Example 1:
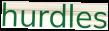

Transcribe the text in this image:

hurdles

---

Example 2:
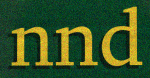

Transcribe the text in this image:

nnd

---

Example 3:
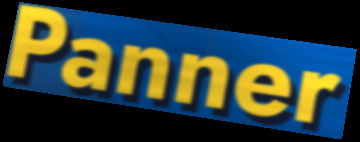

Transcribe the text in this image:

Panner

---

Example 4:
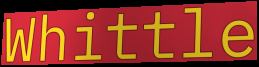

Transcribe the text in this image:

Whittle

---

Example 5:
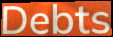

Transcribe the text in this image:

Debts